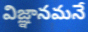
విజ్ఞానమనే